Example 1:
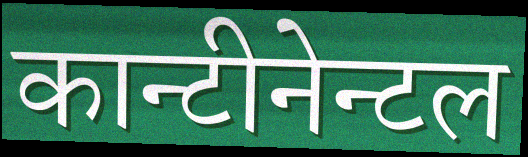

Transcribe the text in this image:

कान्टीनेन्टल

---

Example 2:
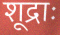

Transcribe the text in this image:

शूद्राः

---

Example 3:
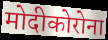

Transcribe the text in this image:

मोदीकोरोना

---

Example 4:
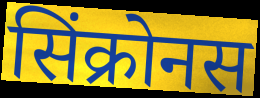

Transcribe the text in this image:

सिंक्रोनस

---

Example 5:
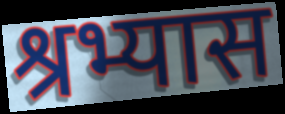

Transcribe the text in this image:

श्रभ्यास